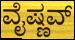
ವೈಷ್ಣವ್